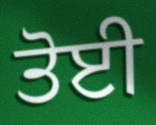
ਤੋਈ